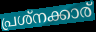
പ്രശ്നക്കാര്